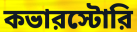
কভারস্টোরি